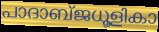
പാദാബ്ജധൂളികാ